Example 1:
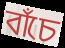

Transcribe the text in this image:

বাঁচে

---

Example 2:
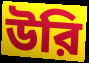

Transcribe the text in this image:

উরি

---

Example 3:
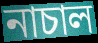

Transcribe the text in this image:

নাচাল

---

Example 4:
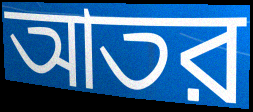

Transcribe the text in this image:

আতর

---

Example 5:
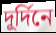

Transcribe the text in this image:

দূর্দিনে